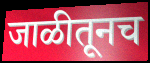
जाळीतूनच